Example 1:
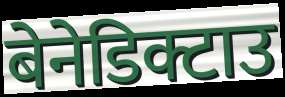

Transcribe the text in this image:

बेनेडिक्टाउ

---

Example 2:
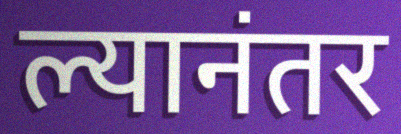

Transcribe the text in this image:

ल्यानंतर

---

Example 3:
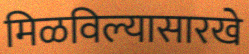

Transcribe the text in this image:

मिळविल्यासारखे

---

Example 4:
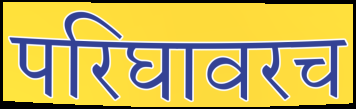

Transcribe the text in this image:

परिघावरच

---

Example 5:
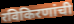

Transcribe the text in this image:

रविकिरणांची